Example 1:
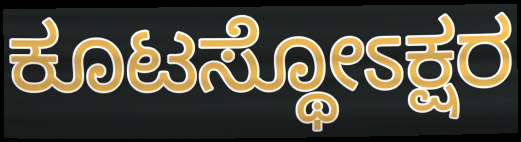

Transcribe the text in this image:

ಕೂಟಸ್ಥೋಽಕ್ಷರ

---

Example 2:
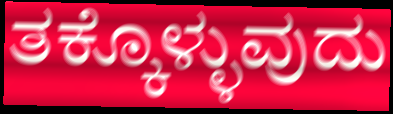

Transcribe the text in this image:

ತಕ್ಕೊಳ್ಳುವುದು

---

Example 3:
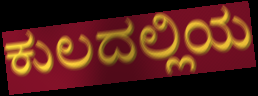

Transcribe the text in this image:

ಕುಲದಲ್ಲಿಯ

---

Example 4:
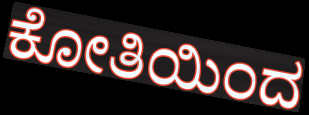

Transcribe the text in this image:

ಕೋತಿಯಿಂದ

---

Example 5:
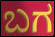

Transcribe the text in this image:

ಬಗ